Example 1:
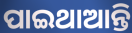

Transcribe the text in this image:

ପାଇଥାଆନ୍ତି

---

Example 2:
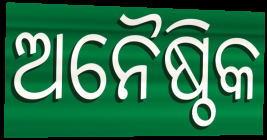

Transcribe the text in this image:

ଅନୈଷ୍ଠିକ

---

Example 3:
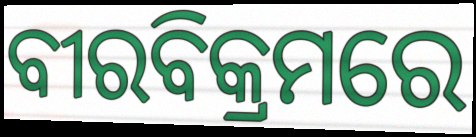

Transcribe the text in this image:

ବୀରବିକ୍ରମରେ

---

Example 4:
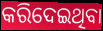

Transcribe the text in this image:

କରିଦେଇଥିବା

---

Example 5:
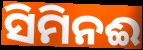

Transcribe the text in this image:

ସିମିନଈ